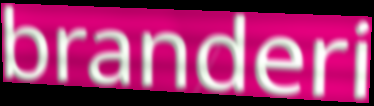
branderi